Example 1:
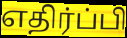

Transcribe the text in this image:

எதிர்ப்பி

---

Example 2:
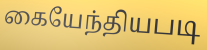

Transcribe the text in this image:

கையேந்தியபடி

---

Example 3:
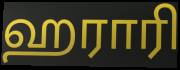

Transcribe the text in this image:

ஹராரி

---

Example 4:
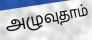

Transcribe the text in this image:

அழுவுதாம்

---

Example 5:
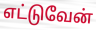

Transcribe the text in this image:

எட்டுவேன்